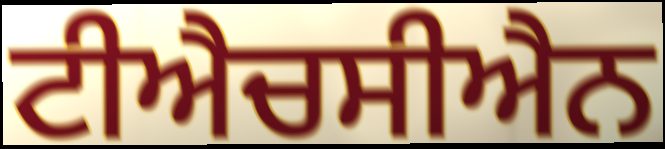
ਟੀਐਚਸੀਐਨ